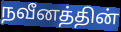
நவீனத்தின்